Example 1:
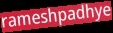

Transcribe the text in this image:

rameshpadhye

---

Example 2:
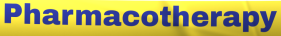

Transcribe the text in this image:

Pharmacotherapy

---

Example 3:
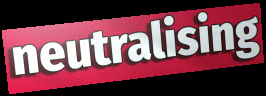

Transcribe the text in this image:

neutralising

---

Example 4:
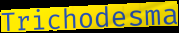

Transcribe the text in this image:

Trichodesma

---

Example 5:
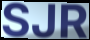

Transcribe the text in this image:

SJR